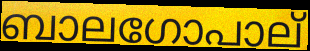
ബാലഗോപാല്